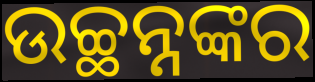
ଉଚ୍ଛନ୍ନଙ୍କର